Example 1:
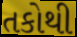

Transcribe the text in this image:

તકોથી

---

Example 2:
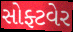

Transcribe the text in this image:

સોફ્ટવેર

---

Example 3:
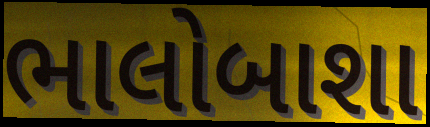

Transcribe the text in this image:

ભાલોબાશા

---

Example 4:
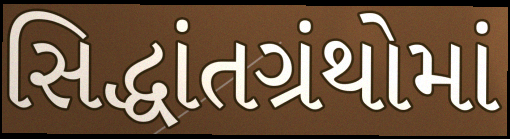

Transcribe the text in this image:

સિદ્ધાંતગ્રંથોમાં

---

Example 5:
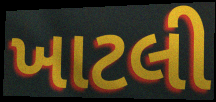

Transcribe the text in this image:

ખાટલી